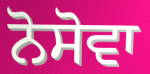
ਨੋਸੋਵਾ